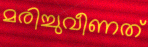
മരിച്ചുവീണത്